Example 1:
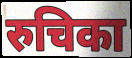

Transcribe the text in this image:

रुचिका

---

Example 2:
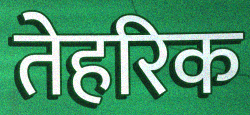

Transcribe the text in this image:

तेहरिक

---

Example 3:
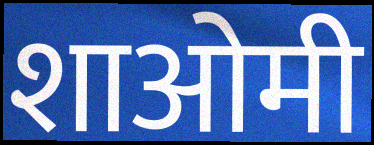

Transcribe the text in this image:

शाओमी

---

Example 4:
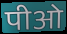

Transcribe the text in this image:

पीओ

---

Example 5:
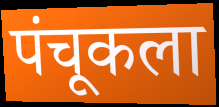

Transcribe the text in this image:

पंचूकला